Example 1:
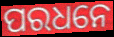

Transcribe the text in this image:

ପରଧନେ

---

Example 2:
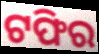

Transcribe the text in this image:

ଟଫିର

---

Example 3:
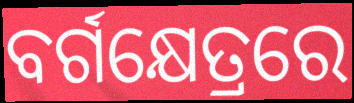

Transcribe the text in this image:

ବର୍ଗକ୍ଷେତ୍ରରେ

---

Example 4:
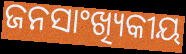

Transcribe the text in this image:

ଜନସାଂଖ୍ୟିକୀୟ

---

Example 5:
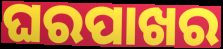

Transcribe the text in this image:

ଘରପାଖର